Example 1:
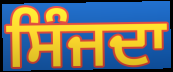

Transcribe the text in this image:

ਸਿੰਜਦਾ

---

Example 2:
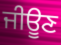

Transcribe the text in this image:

ਜੀਊਣ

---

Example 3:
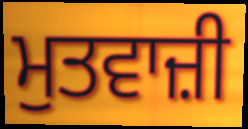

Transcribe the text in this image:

ਮੁਤਵਾਜ਼ੀ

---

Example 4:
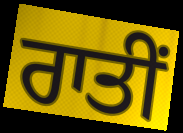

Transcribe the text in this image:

ਰਾਤੀਂ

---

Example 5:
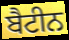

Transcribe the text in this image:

ਬੈਟੀਨ